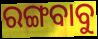
ରଙ୍ଗବାବୁ